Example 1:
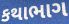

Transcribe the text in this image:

કથાભાગ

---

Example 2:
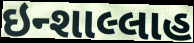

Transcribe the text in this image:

ઇન્શાલ્લાહ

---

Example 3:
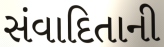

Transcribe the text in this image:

સંવાદિતાની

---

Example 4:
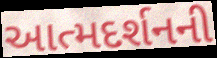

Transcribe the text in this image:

આત્મદર્શનની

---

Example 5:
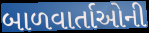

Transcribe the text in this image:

બાળવાર્તાઓની